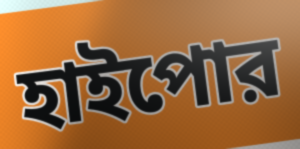
হাইপোর